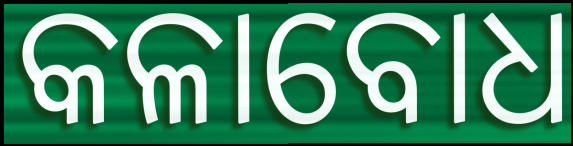
କଳାବୋଧ